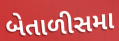
બેતાળીસમા